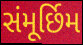
સંમૂર્છિમ